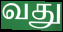
வது